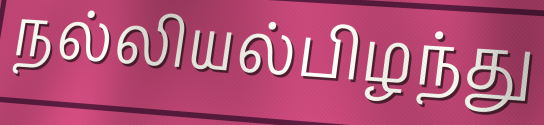
நல்லியல்பிழந்து